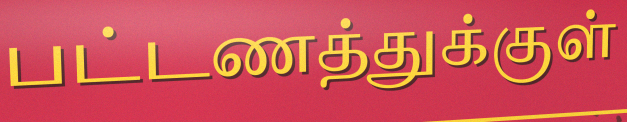
பட்டணத்துக்குள்